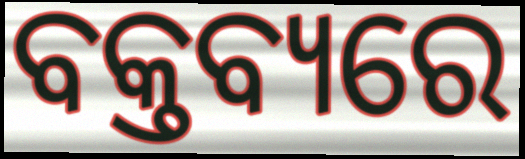
ବକ୍ତବ୍ୟରେ